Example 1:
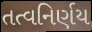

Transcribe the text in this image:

તત્વનિર્ણય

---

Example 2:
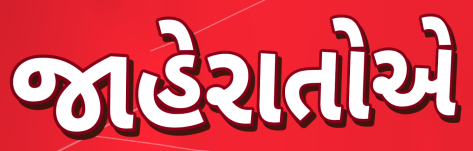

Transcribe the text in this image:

જાહેરાતોએ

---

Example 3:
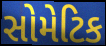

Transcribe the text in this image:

સોમેટિક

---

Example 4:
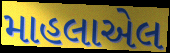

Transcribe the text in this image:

માહલાએલ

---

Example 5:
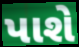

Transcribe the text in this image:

પાશે